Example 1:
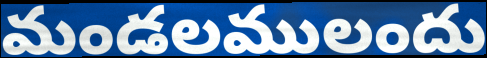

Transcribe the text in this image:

మండలములందు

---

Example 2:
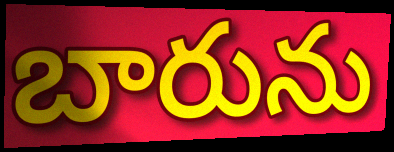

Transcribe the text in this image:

బారును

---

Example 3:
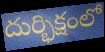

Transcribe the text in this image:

దుర్భిక్షంలో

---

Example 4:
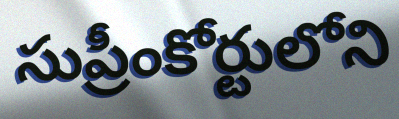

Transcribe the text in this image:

సుప్రీంకోర్టులోని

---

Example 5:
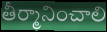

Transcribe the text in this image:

తీర్మానించాలి